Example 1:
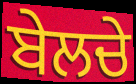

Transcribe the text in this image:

ਬੇਲਚੇ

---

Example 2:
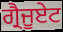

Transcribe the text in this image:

ਗ੍ਰੈਜੂਏਟ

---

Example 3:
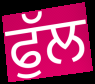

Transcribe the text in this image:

ਫੁੱਲ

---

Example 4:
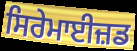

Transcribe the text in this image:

ਸਿਰੇਮਾਈਜ਼ਡ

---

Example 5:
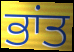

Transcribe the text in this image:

ਭਾਂਤ